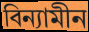
বিন্যামীন